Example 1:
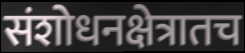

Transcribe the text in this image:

संशोधनक्षेत्रातच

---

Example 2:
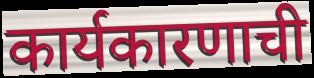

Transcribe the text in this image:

कार्यकारणाची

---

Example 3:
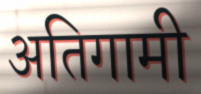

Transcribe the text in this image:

अतिगामी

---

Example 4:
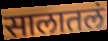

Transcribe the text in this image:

सालातलं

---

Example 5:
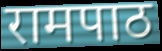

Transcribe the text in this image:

रामपाठ